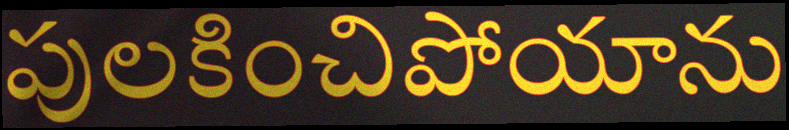
పులకించిపోయాను